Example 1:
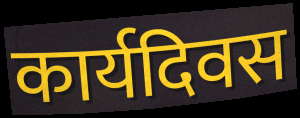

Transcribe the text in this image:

कार्यदिवस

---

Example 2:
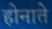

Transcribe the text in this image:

होनाते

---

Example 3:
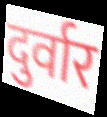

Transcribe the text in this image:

दुर्वार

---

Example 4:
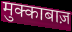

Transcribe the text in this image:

मुक्काबाज़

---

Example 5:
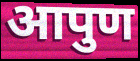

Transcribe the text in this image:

आपुण